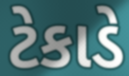
ટેકાડે